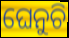
ଘେନୁଚି